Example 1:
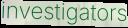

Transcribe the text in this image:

investigators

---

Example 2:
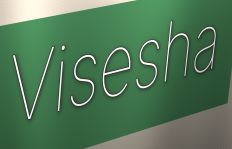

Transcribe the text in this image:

Visesha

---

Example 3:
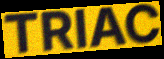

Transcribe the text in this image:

TRIAC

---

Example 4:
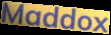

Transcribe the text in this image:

Maddox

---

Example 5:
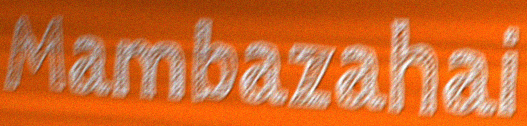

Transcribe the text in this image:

Mambazahai